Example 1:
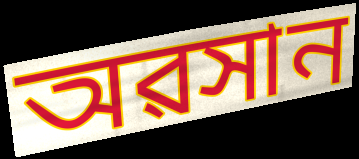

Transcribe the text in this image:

অৱসান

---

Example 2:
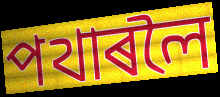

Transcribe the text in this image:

পথাৰলৈ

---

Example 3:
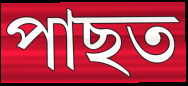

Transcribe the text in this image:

পাছত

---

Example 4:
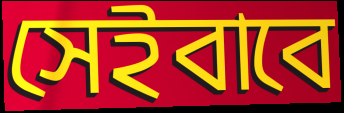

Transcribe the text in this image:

সেইবাবে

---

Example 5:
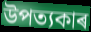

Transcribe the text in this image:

উপত্যকাৰ